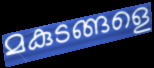
മകുടങ്ങളെ